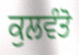
ਕੁਲਵੰਤੋ